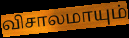
விசாலமாயும்